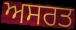
ਅਸਰਤ